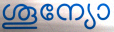
ശൂന്യോ